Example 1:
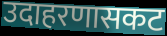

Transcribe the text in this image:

उदाहरणासकट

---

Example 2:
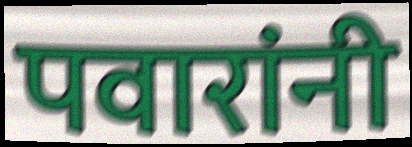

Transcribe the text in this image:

पवारांनी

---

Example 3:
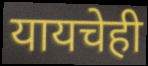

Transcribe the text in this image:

यायचेही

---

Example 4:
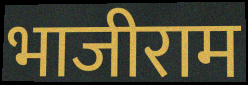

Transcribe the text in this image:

भाजीराम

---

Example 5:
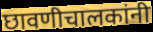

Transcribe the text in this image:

छावणीचालकांनी